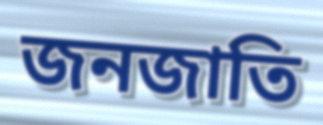
জনজাতি